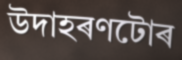
উদাহৰণটোৰ